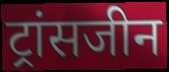
ट्रांसजीन